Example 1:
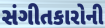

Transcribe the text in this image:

સંગીતકારોની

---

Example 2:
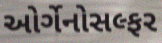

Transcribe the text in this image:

ઓર્ગેનોસલ્ફર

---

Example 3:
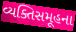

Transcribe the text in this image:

વ્યક્તિસમૂહના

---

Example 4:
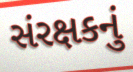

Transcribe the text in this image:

સંરક્ષકનું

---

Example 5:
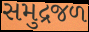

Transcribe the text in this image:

સમુદ્રજળ